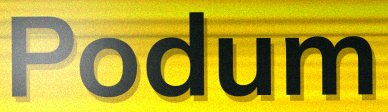
Podum